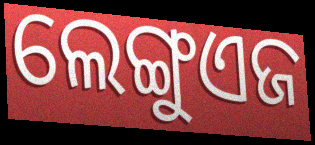
ଲେଙ୍ଗୁଏଜ